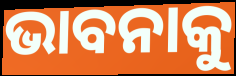
ଭାବନାକୁ